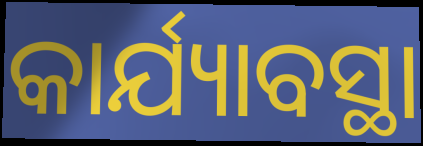
କାର୍ଯ୍ୟାବସ୍ଥା